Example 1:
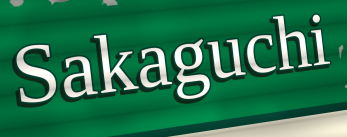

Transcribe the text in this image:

Sakaguchi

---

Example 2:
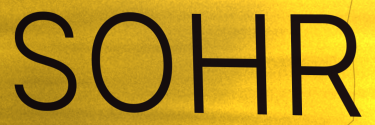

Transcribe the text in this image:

SOHR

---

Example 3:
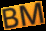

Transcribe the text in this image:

BM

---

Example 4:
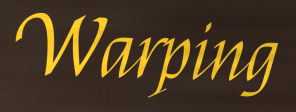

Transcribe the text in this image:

Warping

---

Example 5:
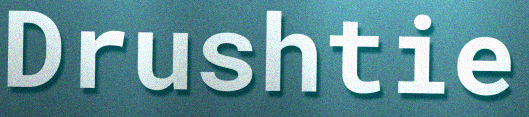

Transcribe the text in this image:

Drushtie